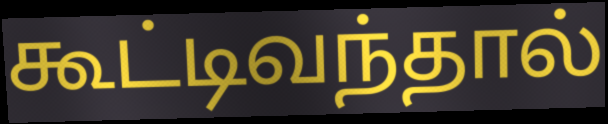
கூட்டிவந்தால்